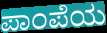
ಪಾಂಪೆಯ